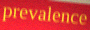
prevalence